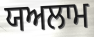
ਯਅਲਾਮ